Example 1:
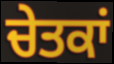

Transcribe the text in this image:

ਚੇਤਕਾਂ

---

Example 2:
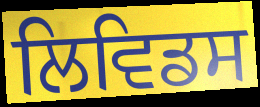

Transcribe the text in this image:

ਲਿਵਿਡਸ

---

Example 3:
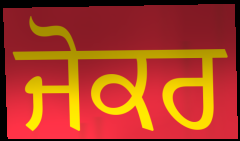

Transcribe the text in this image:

ਜੋਕਰ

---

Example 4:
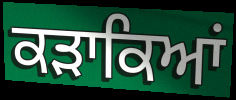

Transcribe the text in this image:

ਕੜਾਕਿਆਂ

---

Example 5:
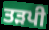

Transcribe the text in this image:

ਤੜਪੀ